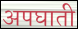
अपघाती